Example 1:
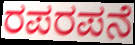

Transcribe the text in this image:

ರಪರಪನೆ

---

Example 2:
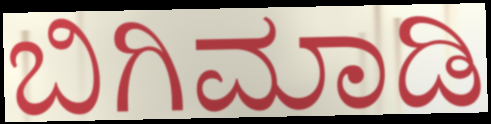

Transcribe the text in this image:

ಬಿಗಿಮಾಡಿ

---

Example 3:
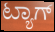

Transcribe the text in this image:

ಟ್ಯಾಗ್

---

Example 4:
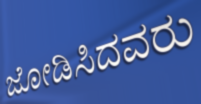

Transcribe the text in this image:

ಜೋಡಿಸಿದವರು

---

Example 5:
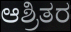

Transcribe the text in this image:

ಆಶ್ರಿತರ